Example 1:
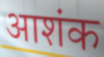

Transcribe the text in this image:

आशंक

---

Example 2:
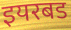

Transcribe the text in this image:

इयरबड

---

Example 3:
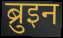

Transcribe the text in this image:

ब्रुइन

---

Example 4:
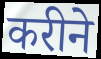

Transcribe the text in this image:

करीने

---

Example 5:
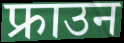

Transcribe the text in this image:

फ्राउन